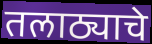
तलाठ्याचे